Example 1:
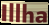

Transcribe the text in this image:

Illha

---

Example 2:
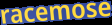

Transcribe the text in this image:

racemose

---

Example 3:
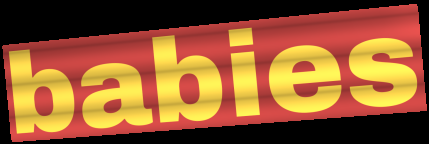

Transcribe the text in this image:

babies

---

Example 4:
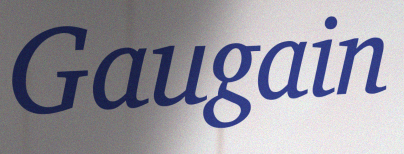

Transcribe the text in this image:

Gaugain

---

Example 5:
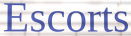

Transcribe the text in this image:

Escorts